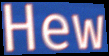
Hew